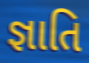
જ્ઞાતિ